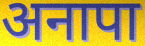
अनापा